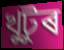
খুটুৰ